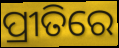
ପ୍ରୀତିରେ